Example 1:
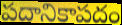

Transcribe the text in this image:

పదానికాపదం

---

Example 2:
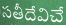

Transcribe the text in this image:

సతీదేవిచే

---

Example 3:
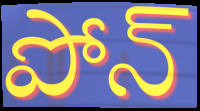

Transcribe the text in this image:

పోన్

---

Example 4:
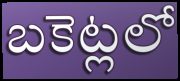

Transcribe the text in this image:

బకెట్లలో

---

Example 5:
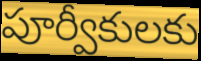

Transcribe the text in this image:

పూర్వీకులకు